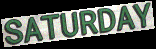
SATURDAY